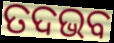
ତଦଭବ